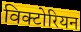
विक्टोरियन